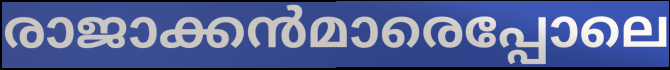
രാജാക്കൻമാരെപ്പോലെ